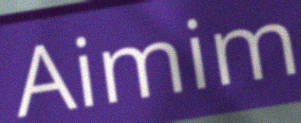
Aimim